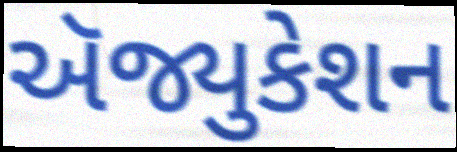
ઍજ્યુકેશન